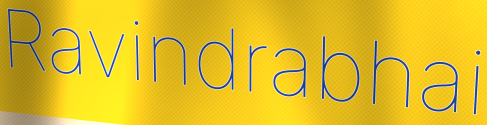
Ravindrabhai